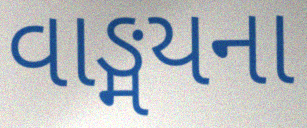
વાઙ્મયના